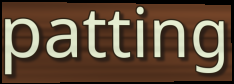
patting